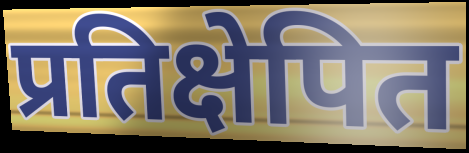
प्रतिक्षेपित